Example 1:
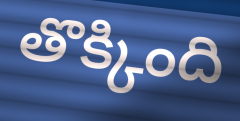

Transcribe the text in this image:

తొక్కింది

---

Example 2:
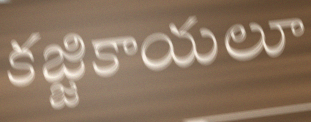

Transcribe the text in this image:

కజ్జికాయలూ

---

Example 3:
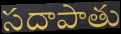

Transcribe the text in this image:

సదాపాతు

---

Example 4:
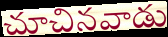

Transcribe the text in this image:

చూచినవాడు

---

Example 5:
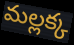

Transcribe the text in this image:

మల్లక్క